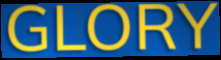
GLORY